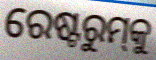
ରେଷ୍ଟରୁମ୍‌କୁ